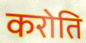
करोति